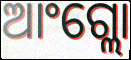
ଆଂଗ୍ଲୋ